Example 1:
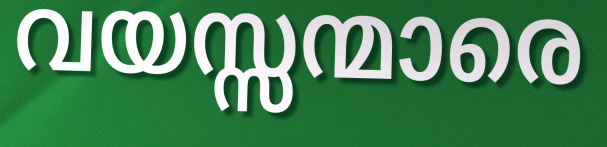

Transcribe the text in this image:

വയസ്സന്മാരെ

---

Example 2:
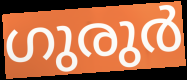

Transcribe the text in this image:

ഗുരുർ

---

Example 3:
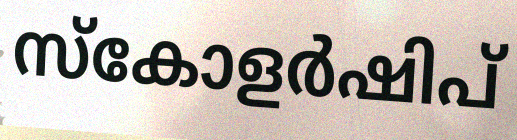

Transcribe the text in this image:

സ്കോളർഷിപ്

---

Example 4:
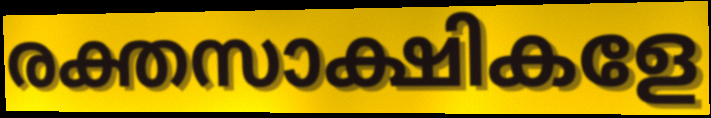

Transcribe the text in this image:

രക്തസാക്ഷികളേ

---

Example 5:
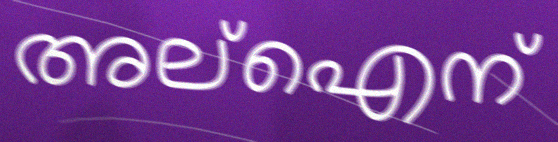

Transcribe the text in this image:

അല്ഐന്